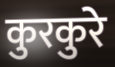
कुरकुरे